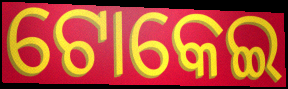
ଟୋକେଇ